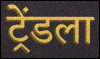
ट्रेंडला